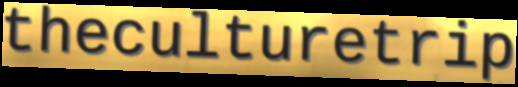
theculturetrip